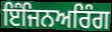
ਇੰਜਿਨਅਰਿੰਗ